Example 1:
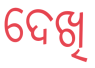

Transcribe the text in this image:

ଦେଖି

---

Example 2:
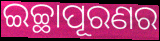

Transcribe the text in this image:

ଇଚ୍ଛାପୂରଣର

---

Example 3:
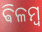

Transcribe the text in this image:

ଵିଳମ୍ବ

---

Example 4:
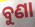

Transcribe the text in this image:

ବୁଣା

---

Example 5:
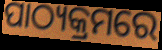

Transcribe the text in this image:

ପାଠ୍ୟକ୍ରମରେ